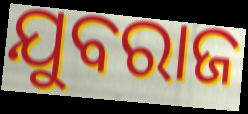
ଯୁବରାଜ